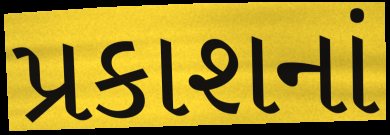
પ્રકાશનાં